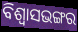
ବିଶ୍ଵାସଭଙ୍ଗର